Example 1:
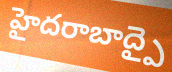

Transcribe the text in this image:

హైదరాబాద్పై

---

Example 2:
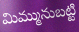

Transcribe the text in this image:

మిమ్మునుబట్టి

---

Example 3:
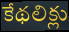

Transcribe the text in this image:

కేథలిక్లు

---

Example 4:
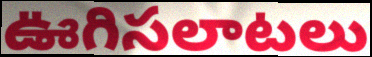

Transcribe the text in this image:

ఊగిసలాటలు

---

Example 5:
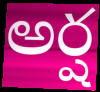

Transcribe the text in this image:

అర్ష